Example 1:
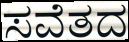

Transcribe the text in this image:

ಸವೆತದ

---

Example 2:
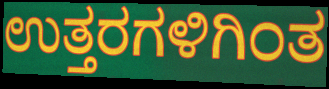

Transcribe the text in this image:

ಉತ್ತರಗಳಿಗಿಂತ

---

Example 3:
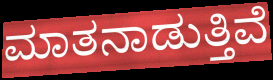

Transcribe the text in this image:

ಮಾತನಾಡುತ್ತಿವೆ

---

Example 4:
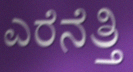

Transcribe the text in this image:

ಎರೆನೆತ್ತಿ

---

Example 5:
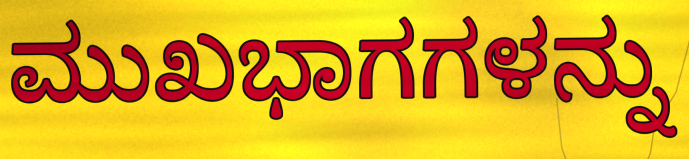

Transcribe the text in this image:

ಮುಖಭಾಗಗಳನ್ನು